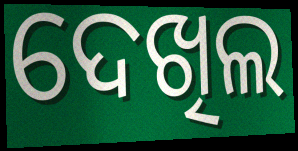
ଦେଖିଲ